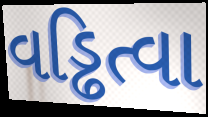
વડ્ઢિત્વા